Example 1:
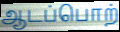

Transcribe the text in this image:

ஆடப்பொற்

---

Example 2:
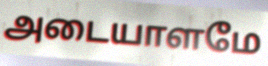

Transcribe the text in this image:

அடையாளமே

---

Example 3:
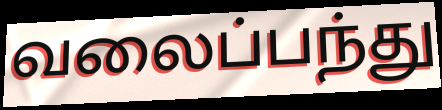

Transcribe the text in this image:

வலைப்பந்து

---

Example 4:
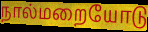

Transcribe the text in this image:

நால்மறையோடு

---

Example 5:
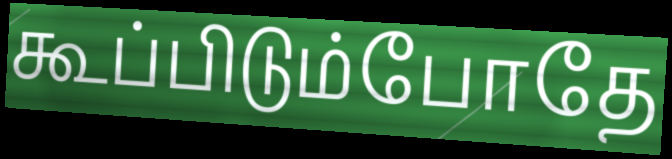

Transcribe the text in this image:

கூப்பிடும்போதே